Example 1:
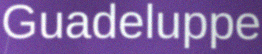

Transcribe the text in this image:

Guadeluppe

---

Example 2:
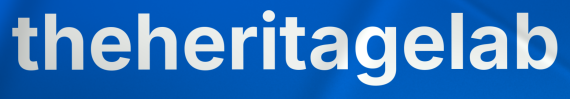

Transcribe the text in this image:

theheritagelab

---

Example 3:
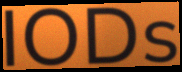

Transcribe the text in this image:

IODs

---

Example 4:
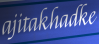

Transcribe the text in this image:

ajitakhadke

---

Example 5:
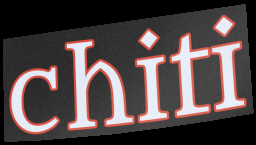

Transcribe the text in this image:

chiti